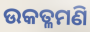
ଉକତ୍ଳମଣି